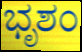
ಭೃಶಂ